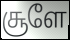
சூளே